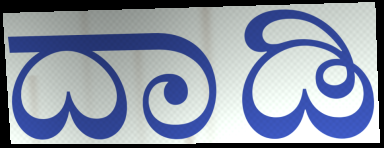
ದಾಡಿ